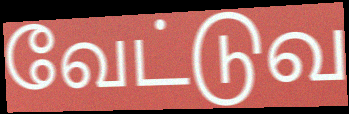
வேட்டுவ